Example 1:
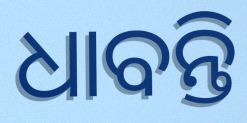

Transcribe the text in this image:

ଧାବନ୍ତି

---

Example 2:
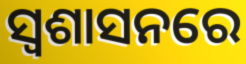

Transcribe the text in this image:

ସ୍ଵଶାସନରେ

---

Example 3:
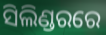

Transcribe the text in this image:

ସିଲିଣ୍ଡରରେ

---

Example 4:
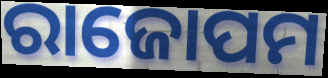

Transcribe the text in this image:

ରାଜୋପମ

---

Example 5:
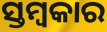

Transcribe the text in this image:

ସ୍ତମ୍ବକାର